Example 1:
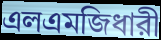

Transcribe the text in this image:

এলএমজিধারী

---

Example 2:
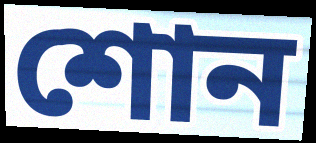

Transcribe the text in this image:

শোন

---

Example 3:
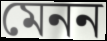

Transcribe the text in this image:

মেনন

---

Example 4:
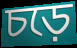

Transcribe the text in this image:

চড়ে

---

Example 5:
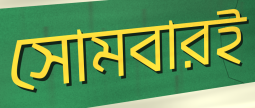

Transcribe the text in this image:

সোমবারই